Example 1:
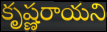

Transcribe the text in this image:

కృష్ణరాయని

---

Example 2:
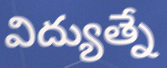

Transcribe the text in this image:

విద్యుత్నే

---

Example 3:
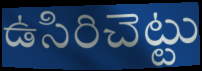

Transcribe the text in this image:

ఉసిరిచెట్టు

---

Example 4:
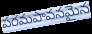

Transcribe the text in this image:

పరమపావనమైన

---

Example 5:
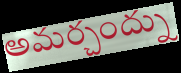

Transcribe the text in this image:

అమర్చంద్ను